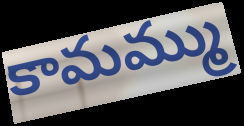
కామమ్ము